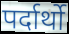
पर्दार्थो